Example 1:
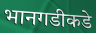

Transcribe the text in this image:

भानगडीकडे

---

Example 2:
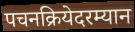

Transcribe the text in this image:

पचनक्रियेदरम्यान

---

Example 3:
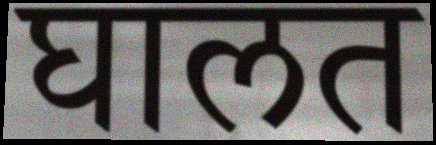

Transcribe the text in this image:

घालत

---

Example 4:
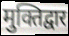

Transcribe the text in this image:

मुक्तिद्वार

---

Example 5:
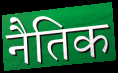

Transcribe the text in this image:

नैतिक